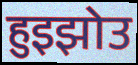
हुइझोउ